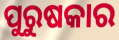
ପୁରୁଷକାର